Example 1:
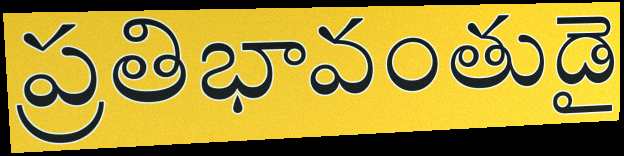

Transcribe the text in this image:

ప్రతిభావంతుడై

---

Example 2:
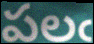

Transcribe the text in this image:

పలఁ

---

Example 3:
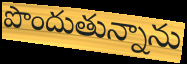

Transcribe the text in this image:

పొందుతున్నాను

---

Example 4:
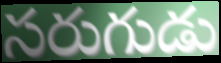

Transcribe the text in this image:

సరుగుడు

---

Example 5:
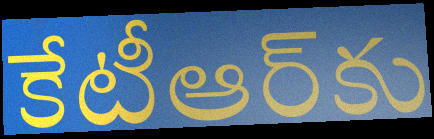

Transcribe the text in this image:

కేటీఆర్‌కు